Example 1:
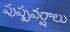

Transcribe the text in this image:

పుష్పవర్షాలు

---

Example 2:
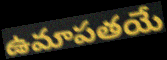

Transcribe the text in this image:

ఉమాపతయే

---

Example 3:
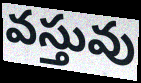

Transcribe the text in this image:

వస్తువు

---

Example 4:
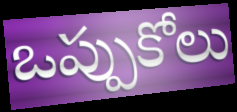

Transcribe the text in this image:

ఒప్పుకోలు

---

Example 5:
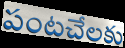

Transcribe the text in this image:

పంటచేలకు